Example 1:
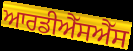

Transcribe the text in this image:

ਆਰਡੀਐੱਸਐੱਸ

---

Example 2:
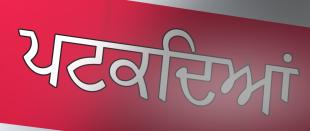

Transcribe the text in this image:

ਪਟਕਦਿਆਂ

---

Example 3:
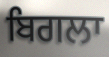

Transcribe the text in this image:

ਬਿਗਲਾ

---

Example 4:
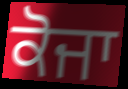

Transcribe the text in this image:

ਕੋਜਾ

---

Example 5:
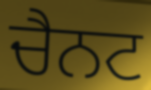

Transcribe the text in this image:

ਚੈਨਟ